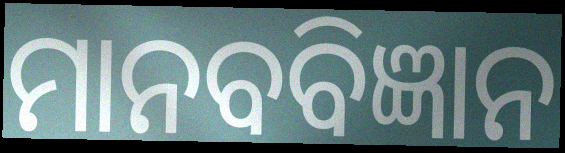
ମାନବବିଜ୍ଞାନ